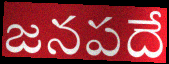
జనపదే